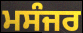
ਮਸੰਜਰ